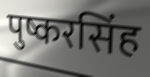
पुष्करसिंह